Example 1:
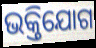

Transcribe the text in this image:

ଭକ୍ତିଯୋଗ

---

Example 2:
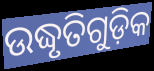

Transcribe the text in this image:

ଉଦ୍ଧୃତିଗୁଡ଼ିକ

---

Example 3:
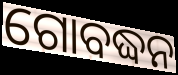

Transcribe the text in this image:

ଗୋବଦ୍ଧନ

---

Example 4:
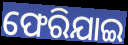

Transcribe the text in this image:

ଫେରିଯାଇ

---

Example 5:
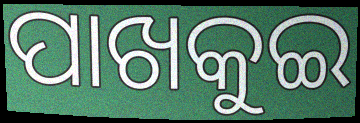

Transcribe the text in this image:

ପାଖକୁଇ